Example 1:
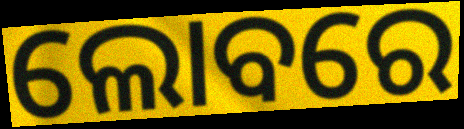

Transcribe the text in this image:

ଲୋବରେ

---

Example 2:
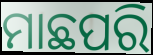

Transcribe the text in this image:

ମାଛପରି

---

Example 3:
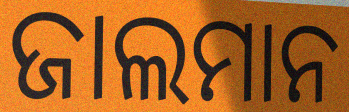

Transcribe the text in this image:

ଜାଲମାନ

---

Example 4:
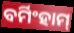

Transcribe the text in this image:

ବର୍ମିଂହାମ୍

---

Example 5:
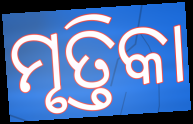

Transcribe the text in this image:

ମୃତ୍ତିକା